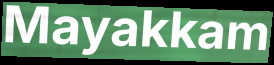
Mayakkam